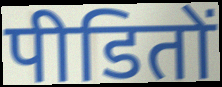
पीडितों